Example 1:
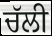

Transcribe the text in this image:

ਚੱਲੀ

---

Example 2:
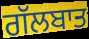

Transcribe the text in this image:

ਗੱਲਬਾਤ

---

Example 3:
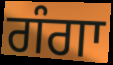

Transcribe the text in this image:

ਗੰਗਾ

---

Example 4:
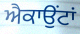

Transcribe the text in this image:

ਐਕਾਉਂਟਾਂ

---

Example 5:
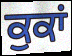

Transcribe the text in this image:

ਕੁਕਾਂ